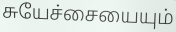
சுயேச்சையையும்